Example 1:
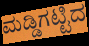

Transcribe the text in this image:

ಮಡ್ಡಿಗಟ್ಟಿದ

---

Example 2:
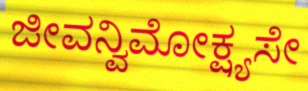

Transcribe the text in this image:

ಜೀವನ್ವಿಮೋಕ್ಷ್ಯಸೇ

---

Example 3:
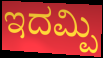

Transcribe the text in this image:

ಇದಮ್ಪಿ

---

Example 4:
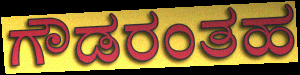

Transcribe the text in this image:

ಗೌಡರಂತಹ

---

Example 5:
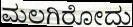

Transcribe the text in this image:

ಮಲಗಿರೋದು